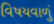
વિષયવાળું